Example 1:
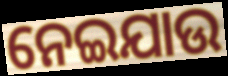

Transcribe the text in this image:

ନେଇଯାଉ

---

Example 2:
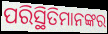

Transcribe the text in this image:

ପରିସ୍ଥିତିମାନଙ୍କର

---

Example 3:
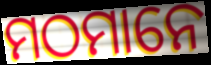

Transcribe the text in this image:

ମଠମାନେ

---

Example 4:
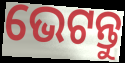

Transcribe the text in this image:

ଭେଟନ୍ତୁ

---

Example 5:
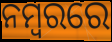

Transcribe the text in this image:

ନମ୍ବରରେ